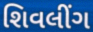
શિવલીંગ